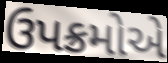
ઉપક્રમોએ